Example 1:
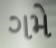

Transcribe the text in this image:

ગમે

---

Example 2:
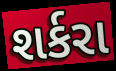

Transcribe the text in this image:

શર્કરા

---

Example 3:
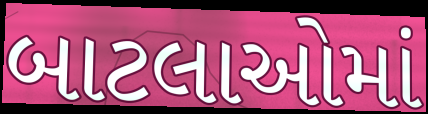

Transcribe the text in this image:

બાટલાઓમાં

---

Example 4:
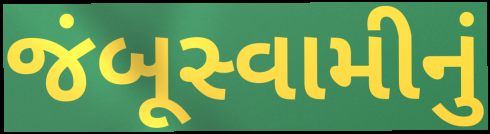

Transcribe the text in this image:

જંબૂસ્વામીનું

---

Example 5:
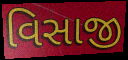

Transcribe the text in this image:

વિસાજી